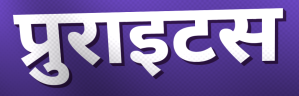
प्रुराइटस